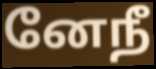
னேநீ